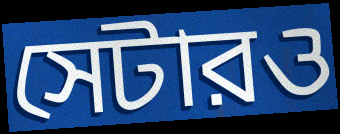
সেটারও